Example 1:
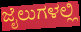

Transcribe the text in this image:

ಜೈಲುಗಳಲ್ಲಿ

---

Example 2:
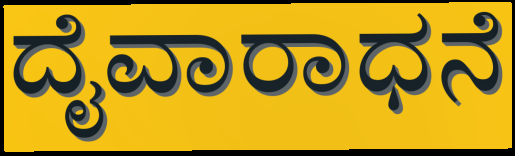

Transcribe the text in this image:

ದೈವಾರಾಧನೆ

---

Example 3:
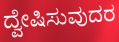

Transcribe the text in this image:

ದ್ವೇಷಿಸುವುದರ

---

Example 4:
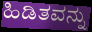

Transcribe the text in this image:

ಹಿಡಿತವನ್ನು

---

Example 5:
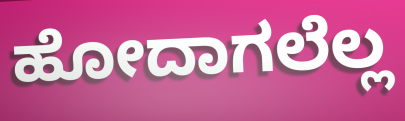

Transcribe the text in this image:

ಹೋದಾಗಲೆಲ್ಲ